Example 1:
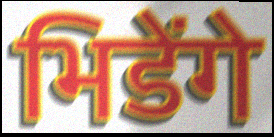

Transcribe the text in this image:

भिडेंगे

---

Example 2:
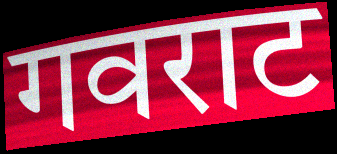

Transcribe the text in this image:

गवराट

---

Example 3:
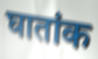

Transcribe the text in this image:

घातांक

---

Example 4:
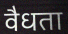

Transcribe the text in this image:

वैधता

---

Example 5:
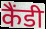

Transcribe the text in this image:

कैंडी